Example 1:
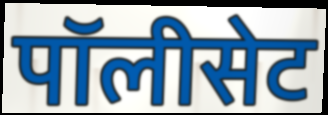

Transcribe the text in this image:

पॉलीसेट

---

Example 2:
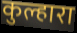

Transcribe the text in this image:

कुल्हारा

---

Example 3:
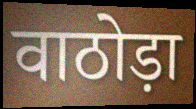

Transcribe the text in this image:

वाठोड़ा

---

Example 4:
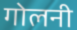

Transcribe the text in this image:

गोलनी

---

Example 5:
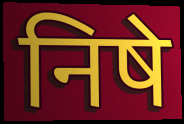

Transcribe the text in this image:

निषे